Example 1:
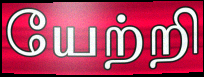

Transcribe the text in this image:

யேற்றி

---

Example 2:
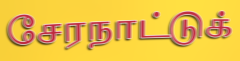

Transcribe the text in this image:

சேரநாட்டுக்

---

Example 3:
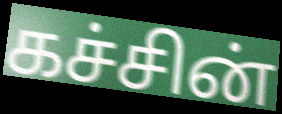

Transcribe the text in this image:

கச்சின்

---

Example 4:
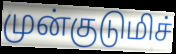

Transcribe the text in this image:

முன்குடுமிச்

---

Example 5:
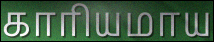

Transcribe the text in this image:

காரியமாய